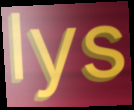
lys